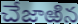
చేజాఱిన